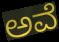
ಅವೆ